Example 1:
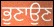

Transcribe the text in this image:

ਭੁਣਾਉਣ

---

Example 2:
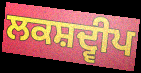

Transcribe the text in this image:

ਲਕਸ਼ਦ੍ਵੀਪ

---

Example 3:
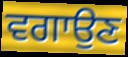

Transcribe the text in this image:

ਵਗਾਉਣ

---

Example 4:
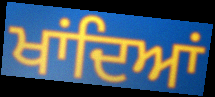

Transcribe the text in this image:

ਖਾਂਦਿਆਂ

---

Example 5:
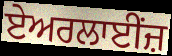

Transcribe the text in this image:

ਏਅਰਲਾਈਂਜ਼